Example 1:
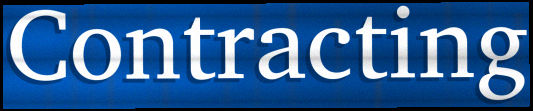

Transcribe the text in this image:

Contracting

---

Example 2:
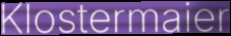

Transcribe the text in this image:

Klostermaier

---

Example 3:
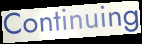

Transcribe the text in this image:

Continuing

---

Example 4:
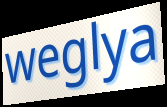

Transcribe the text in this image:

weglya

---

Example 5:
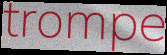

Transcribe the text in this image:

trompe